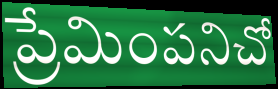
ప్రేమింపనిచో